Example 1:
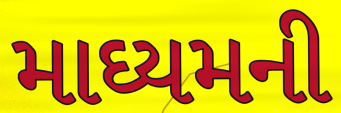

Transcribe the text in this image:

માઘ્યમની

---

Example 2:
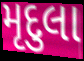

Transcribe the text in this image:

મૃદુલા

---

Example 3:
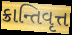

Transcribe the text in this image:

ક્રાન્તિવૃત્ત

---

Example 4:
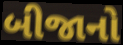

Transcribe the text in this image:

બીજાનો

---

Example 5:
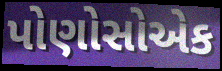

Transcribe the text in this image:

પોણોસોએક